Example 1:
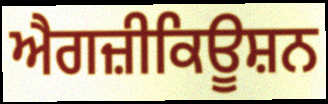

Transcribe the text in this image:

ਐਗਜ਼ੀਕਿਊਸ਼ਨ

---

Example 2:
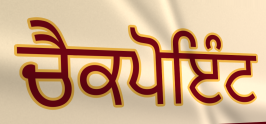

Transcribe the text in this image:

ਚੈਕਪੋਇੰਟ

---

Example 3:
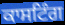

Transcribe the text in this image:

ਕਾਸਟਿੰਗ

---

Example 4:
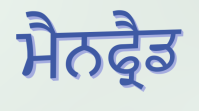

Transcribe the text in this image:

ਮੈਨਫ੍ਰੈਡ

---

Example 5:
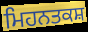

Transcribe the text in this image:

ਮਿਹਨਤਕਸ਼